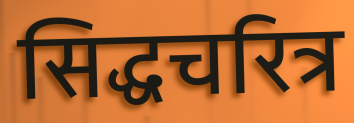
सिद्धचरित्र